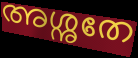
അശ്നുതേ